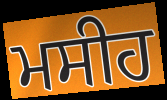
ਮਸੀਹ